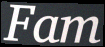
Fam